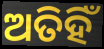
ଅତିହିଁ